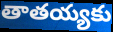
తాతయ్యకు